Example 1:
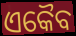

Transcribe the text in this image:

ଏକୈବ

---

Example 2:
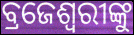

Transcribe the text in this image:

ବ୍ରଜେଶ୍ୱରୀଙ୍କୁ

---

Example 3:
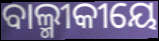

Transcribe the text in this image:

ବାଲ୍ମୀକୀୟେ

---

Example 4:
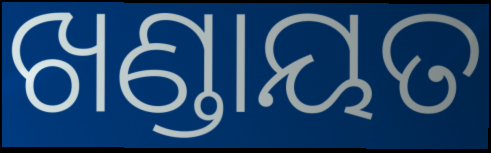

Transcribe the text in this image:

ଖଣ୍ଡାୟତ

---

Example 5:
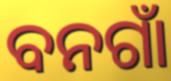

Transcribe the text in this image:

ବନଗାଁ